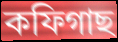
কফিগাছ